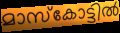
മാസ്കോട്ടിൽ